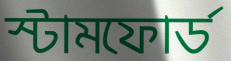
স্টামফোর্ড